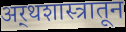
अर्थशास्त्रातून